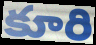
కూరి